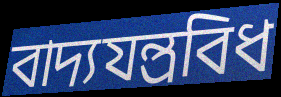
বাদ্যযন্ত্ৰবিধ